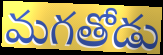
మగతోడు